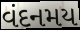
વંદનમય